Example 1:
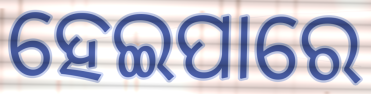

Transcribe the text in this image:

ହେଇପାରେ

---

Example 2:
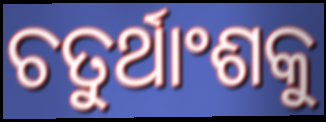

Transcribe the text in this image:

ଚତୁର୍ଥାଂଶକୁ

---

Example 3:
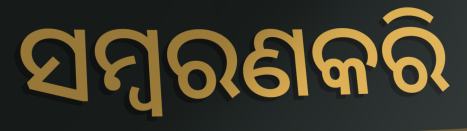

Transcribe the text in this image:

ସମ୍ବରଣକରି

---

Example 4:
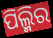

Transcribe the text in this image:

ପିଲ୍ମିର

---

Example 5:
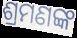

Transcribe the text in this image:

ଶ୍ରମଣଙ୍କ